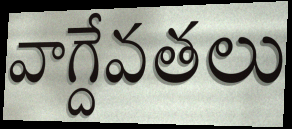
వాగ్దేవతలు